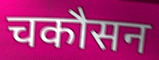
चकौसन